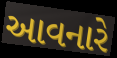
આવનારે